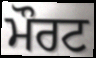
ਮੌਰਟ